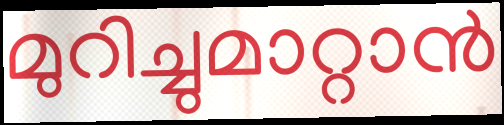
മുറിച്ചുമാറ്റാൻ